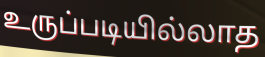
உருப்படியில்லாத